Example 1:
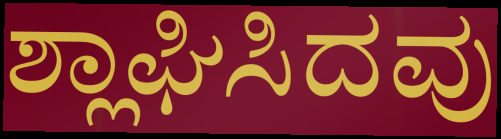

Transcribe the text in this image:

ಶ್ಲಾಘಿಸಿದವು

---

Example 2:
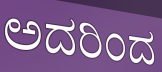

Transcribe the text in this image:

ಅದರಿಂದ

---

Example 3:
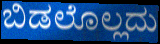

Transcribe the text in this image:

ಬಿಡಲೊಲ್ಲದು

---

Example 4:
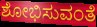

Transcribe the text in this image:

ಶೋಭಿಸುವಂತೆ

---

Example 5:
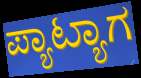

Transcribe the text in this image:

ಪ್ಯಾಟ್ಯಾಗ